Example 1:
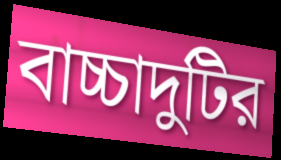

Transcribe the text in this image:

বাচ্চাদুটির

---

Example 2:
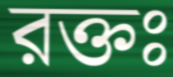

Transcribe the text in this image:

রক্তঃ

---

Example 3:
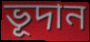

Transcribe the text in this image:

ভূদান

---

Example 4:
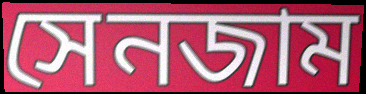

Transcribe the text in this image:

সেনজাম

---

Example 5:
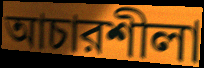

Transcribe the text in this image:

আচারশীলা